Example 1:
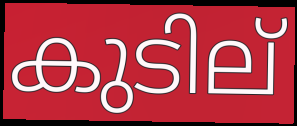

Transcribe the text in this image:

കുടില്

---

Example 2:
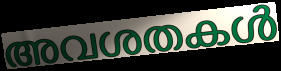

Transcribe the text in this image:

അവശതകൾ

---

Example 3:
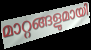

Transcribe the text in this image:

മാറ്റങ്ങളുമായി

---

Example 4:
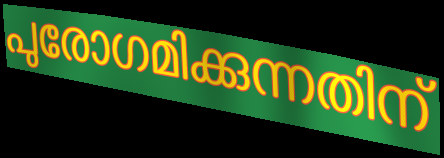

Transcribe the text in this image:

പുരോഗമിക്കുന്നതിന്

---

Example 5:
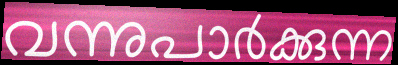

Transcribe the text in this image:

വന്നുപാർക്കുന്ന